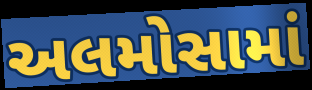
અલમોસામાં